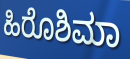
ಹಿರೊಶಿಮಾ